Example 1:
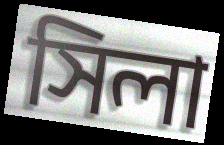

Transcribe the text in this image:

সিলা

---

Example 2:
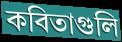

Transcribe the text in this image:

কবিতাগুলি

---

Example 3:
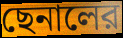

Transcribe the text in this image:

ছেনালের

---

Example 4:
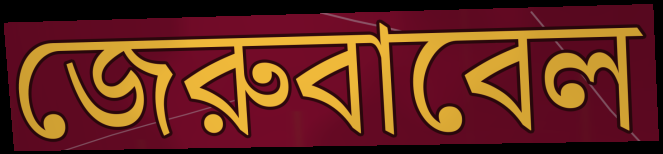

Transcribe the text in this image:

জেরুবাবেল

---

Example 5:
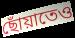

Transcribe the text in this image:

ছোঁয়াতেও